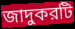
জাদুকরটি